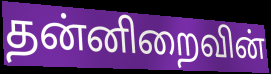
தன்னிறைவின்